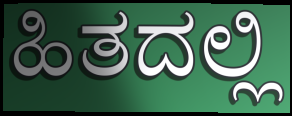
ಹಿತದಲ್ಲಿ